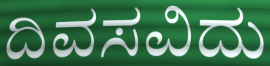
ದಿವಸವಿದು